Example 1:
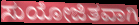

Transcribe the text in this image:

ಸುಯೋಜಿತವಾಗಿ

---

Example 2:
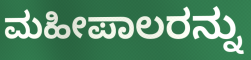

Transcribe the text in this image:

ಮಹೀಪಾಲರನ್ನು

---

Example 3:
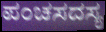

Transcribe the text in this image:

ಪಂಚಸದಸ್ಯ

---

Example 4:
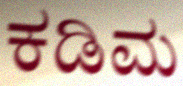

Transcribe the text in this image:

ಕಡಿಮ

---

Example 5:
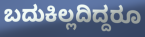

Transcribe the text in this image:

ಬದುಕಿಲ್ಲದಿದ್ದರೂ